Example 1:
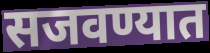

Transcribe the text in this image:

सजवण्यात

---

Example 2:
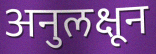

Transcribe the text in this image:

अनुलक्षून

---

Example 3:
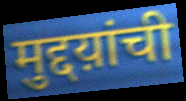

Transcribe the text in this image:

मुद्दय़ांची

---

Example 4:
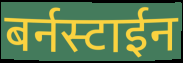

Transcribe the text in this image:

बर्नस्टाईन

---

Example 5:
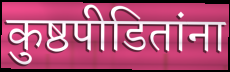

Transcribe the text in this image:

कुष्ठपीडितांना